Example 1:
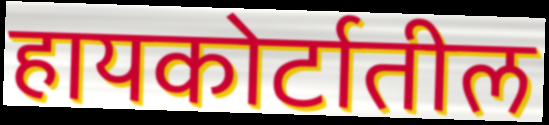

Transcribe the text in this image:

हायकोर्टातील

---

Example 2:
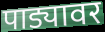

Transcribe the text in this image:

पाड्यावर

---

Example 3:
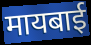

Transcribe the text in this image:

मायबाई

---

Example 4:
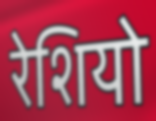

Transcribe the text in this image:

रेशियो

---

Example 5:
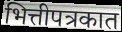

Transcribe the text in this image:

भित्तीपत्रकात